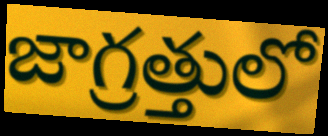
జాగ్రత్తులో